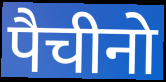
पैचीनो